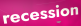
recession